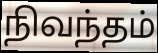
நிவந்தம்